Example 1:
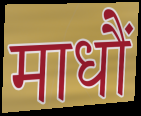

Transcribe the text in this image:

माधौं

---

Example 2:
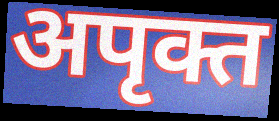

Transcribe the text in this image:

अपृक्त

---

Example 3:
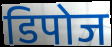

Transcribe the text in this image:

डिपोज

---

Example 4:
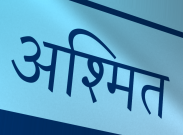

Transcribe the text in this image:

अश्मित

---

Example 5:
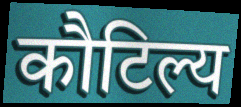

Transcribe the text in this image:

कौटिल्य